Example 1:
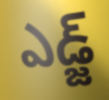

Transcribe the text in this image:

ఎడ్జ్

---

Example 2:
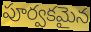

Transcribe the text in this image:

పూర్వకమైన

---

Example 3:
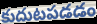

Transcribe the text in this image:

కుదుటపడడం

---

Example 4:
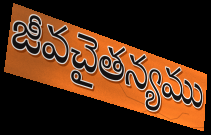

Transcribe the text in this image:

జీవచైతన్యము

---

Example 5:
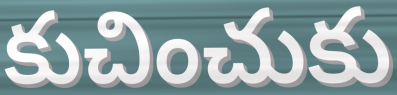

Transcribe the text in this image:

కుచించుకు